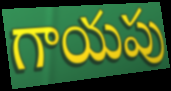
గాయపు